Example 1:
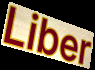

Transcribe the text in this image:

Liber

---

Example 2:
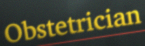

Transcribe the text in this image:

Obstetrician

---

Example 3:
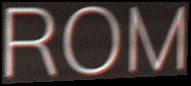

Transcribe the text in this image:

ROM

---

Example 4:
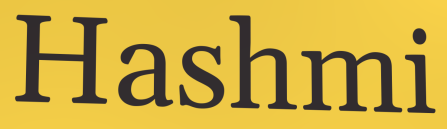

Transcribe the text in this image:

Hashmi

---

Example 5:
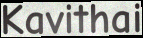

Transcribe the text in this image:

Kavithai